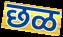
छळ